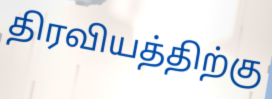
திரவியத்திற்கு